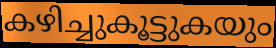
കഴിച്ചുകൂട്ടുകയും